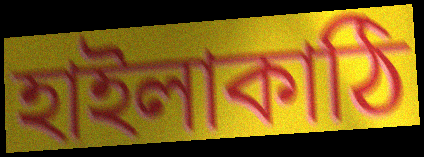
হাইলাকাঠি